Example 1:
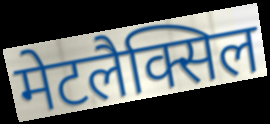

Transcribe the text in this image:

मेटलैक्सिल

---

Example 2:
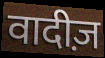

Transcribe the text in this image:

वादीज़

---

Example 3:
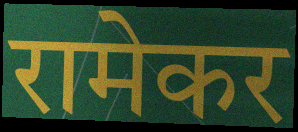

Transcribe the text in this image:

रामेकर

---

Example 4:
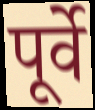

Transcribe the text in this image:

पूर्वे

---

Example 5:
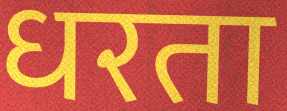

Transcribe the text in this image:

धरता